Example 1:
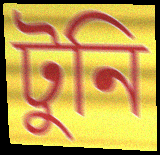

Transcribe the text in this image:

টুনি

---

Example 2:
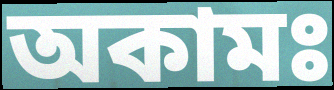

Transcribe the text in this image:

অকামঃ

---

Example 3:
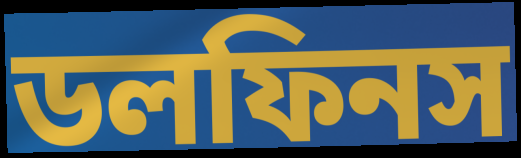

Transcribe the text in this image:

ডলফিনস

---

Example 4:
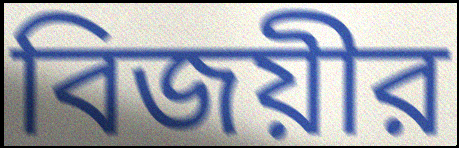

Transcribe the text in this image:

বিজয়ীর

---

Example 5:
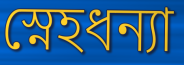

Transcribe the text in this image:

স্নেহধন্যা